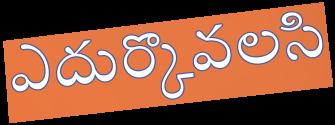
ఎదుర్కొవలసి